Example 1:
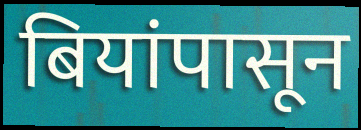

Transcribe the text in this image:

बियांपासून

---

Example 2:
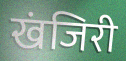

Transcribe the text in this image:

खंजिरी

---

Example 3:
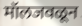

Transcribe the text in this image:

मॉलजवळून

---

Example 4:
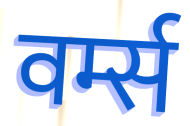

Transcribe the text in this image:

वर्म्स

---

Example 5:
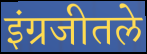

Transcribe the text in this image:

इंग्रजीतले